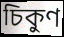
চিকুণ